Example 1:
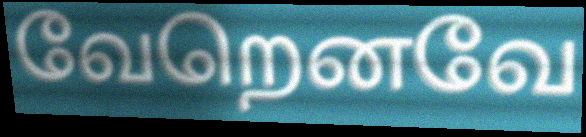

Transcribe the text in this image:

வேறெனவே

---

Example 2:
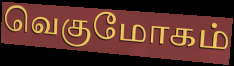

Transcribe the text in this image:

வெகுமோகம்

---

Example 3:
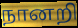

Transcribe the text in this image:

நானறி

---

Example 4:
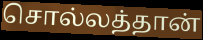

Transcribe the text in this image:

சொல்லத்தான்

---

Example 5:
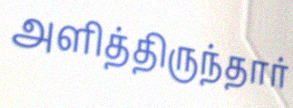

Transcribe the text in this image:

அளித்திருந்தார்